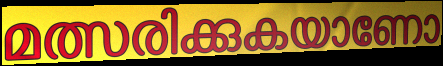
മത്സരിക്കുകയാണോ